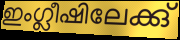
ഇംഗ്ലീഷിലേക്കു്